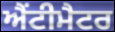
ਐਂਟੀਮੈਟਰ